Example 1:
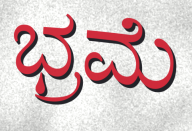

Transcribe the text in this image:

ಭ್ರಮೆ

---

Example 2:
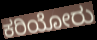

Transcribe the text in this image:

ಕರಿಯೋರು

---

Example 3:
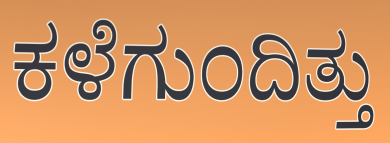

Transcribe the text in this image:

ಕಳೆಗುಂದಿತ್ತು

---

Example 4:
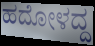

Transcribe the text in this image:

ಹದೋಳದ್ದ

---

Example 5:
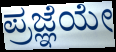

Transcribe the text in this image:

ಪ್ರಜ್ಞೆಯೇ